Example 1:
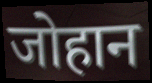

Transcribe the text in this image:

जोहान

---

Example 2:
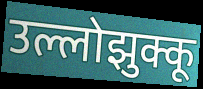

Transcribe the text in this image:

उल्लोझुक्कू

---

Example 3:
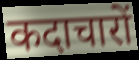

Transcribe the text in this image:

कदाचारों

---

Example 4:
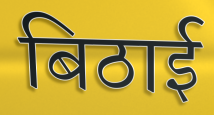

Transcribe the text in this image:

बिठाई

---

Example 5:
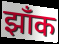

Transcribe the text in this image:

झाँक